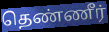
தெண்ணீர்